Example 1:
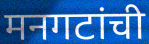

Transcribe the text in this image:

मनगटांची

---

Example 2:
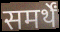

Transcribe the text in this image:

समर्थें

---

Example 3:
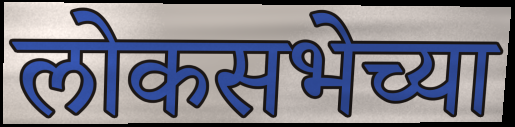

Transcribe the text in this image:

लोकसभेच्या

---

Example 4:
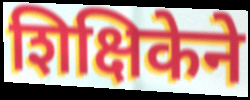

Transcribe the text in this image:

शिक्षिकेने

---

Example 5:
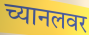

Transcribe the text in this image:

च्यानलवर